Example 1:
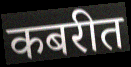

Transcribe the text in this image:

कबरीत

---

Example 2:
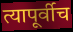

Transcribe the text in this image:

त्यापूर्वीच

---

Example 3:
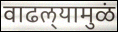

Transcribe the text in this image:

वाढल्यामुळं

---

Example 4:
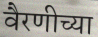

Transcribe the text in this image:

वैरणीच्या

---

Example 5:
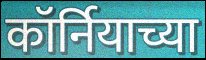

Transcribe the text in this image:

कॉर्नियाच्या